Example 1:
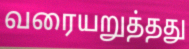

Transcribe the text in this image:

வரையறுத்தது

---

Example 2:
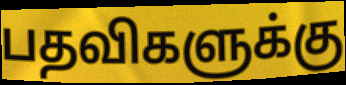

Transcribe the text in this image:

பதவிகளுக்கு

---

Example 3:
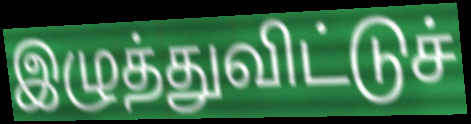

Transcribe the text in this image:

இழுத்துவிட்டுச்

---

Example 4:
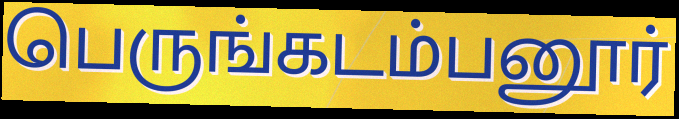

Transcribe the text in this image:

பெருங்கடம்பனூர்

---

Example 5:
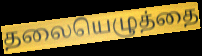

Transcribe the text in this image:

தலையெழுத்தை